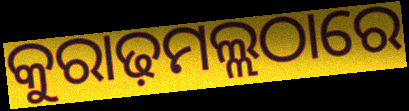
କୁରାଢ଼ମଲ୍ଲଠାରେ